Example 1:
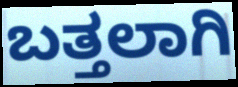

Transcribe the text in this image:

ಬತ್ತಲಾಗಿ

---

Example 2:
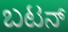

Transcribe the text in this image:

ಬಟನ್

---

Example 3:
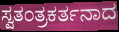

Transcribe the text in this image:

ಸ್ವತಂತ್ರಕರ್ತನಾದ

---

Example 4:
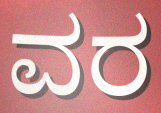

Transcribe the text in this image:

ವರ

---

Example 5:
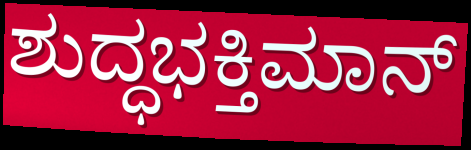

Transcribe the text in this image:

ಶುದ್ಧಭಕ್ತಿಮಾನ್